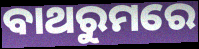
ବାଥରୁମରେ